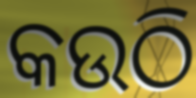
କଉଠି